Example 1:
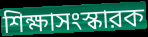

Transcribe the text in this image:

শিক্ষাসংস্কারক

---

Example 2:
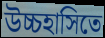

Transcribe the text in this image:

উচ্চহাসিতে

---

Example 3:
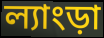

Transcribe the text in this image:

ল্যাংড়া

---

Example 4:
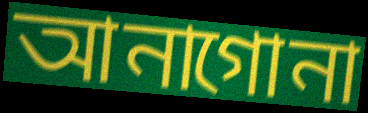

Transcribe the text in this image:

আনাগোনা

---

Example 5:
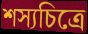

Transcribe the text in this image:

শস্যচিত্রে